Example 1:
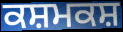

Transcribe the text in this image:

ਕਸ਼ਮਕਸ਼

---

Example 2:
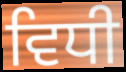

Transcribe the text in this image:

ਵਿਧੀ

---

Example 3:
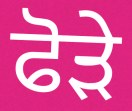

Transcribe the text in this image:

ਫੋੜੇ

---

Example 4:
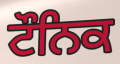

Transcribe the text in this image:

ਟੌਨਿਕ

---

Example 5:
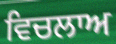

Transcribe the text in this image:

ਵਿਚਲਾਅ